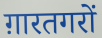
ग़ारतगरों